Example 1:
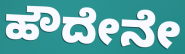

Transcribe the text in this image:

ಹೌದೇನೇ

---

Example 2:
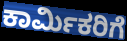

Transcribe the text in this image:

ಕಾರ್ಮಿಕರಿಗೆ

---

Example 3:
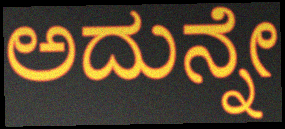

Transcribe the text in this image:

ಅದುನ್ನೇ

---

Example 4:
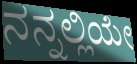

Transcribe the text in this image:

ನನ್ನಲ್ಲಿಯೇ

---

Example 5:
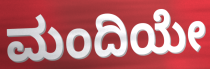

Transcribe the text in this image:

ಮಂದಿಯೇ